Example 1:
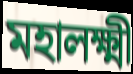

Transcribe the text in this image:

মহালক্ষ্মী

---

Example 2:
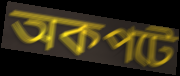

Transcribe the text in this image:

অকপটে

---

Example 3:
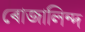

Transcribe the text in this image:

ৰোজালিন্দ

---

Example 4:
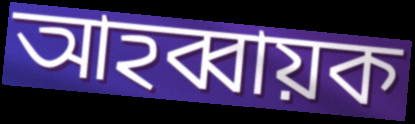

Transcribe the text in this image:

আহব্বায়ক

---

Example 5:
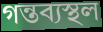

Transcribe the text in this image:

গন্তব্যস্থল